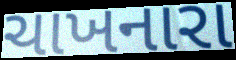
ચાખનારા